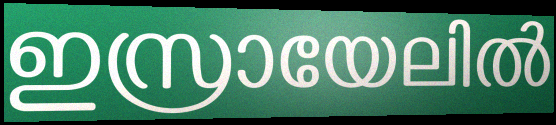
ഇസ്രായേലിൽ